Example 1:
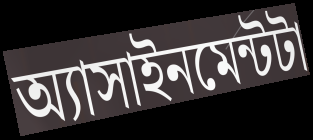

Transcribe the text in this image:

অ্যাসাইনমেন্টটা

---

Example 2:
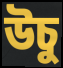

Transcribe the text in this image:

উচু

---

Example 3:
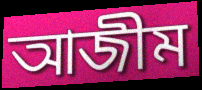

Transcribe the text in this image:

আজীম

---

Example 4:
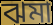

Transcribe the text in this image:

ঝমা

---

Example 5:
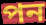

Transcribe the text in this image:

পন